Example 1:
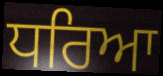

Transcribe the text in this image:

ਧਰਿਆ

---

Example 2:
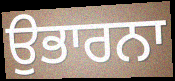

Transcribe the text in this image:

ਉਭਾਰਨਾ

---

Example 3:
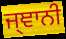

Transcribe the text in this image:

ਜ੍ਞਾਨੀ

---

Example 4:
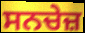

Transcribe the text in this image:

ਸਨਚੇਜ਼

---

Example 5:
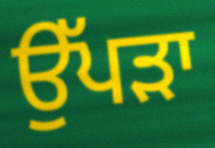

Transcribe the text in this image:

ਉੱਪੜਾ